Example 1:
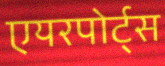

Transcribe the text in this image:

एयरपोर्ट्स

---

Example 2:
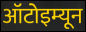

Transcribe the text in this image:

ऑटोइम्‍यून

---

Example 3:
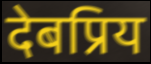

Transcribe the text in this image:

देबप्रिय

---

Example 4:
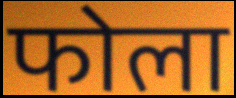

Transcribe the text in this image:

फोला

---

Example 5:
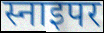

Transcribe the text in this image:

स्नाइपर